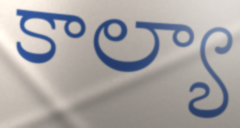
కాల్యా